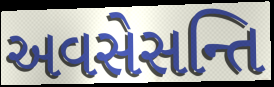
અવસેસન્તિ